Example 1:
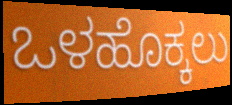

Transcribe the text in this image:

ಒಳಹೊಕ್ಕಲು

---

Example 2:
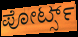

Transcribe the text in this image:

ಪೋರ್ಟ್ಸ್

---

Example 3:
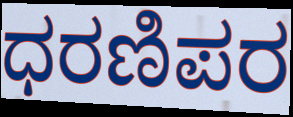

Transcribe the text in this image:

ಧರಣಿಪರ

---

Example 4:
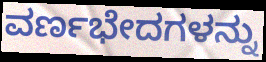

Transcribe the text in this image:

ವರ್ಣಭೇದಗಳನ್ನು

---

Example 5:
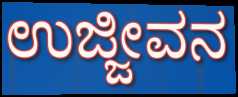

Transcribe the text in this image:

ಉಜ್ಜೀವನ